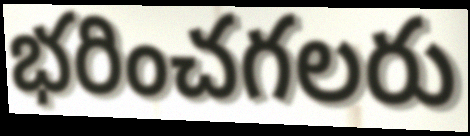
భరించగలరు